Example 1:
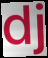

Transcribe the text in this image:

dj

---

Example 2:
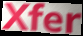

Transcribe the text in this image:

Xfer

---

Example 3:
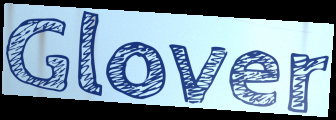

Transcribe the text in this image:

Glover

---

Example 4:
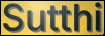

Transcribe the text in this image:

Sutthi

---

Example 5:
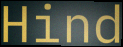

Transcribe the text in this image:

Hind